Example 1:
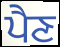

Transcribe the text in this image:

ਪੈਣ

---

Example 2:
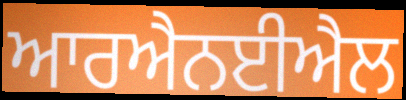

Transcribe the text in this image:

ਆਰਐਨਈਐਲ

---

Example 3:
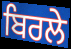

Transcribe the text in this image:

ਬਿਰਲੇ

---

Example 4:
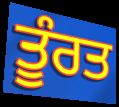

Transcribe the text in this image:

ਤੂੰਰਤ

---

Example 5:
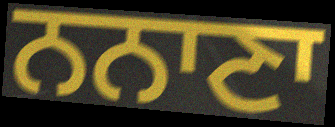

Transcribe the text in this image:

ਨਨਾਣਾ